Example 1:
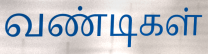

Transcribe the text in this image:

வண்டிகள்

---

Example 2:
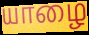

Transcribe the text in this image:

யாழை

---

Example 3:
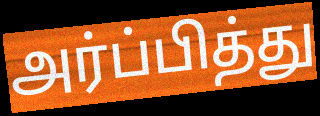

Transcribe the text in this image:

அர்ப்பித்து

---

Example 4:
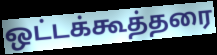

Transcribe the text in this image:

ஒட்டக்கூத்தரை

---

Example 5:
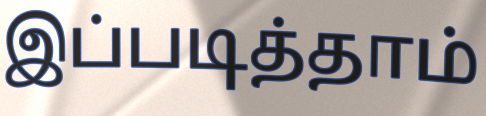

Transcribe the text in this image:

இப்படித்தாம்